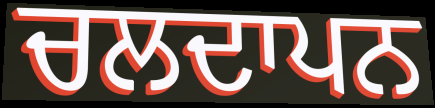
ਚਲਦਾਪਨ